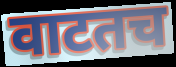
वाटतच